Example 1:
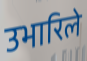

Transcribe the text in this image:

उभारिले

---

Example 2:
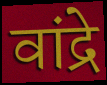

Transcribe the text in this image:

वांद्रे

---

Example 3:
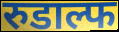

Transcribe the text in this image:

रुडाल्फ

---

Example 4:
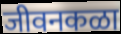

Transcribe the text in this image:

जीवनकळा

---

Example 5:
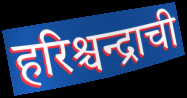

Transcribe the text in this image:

हरिश्चन्द्राची